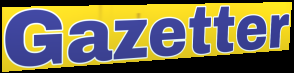
Gazetter